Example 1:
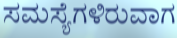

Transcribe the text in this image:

ಸಮಸ್ಯೆಗಳಿರುವಾಗ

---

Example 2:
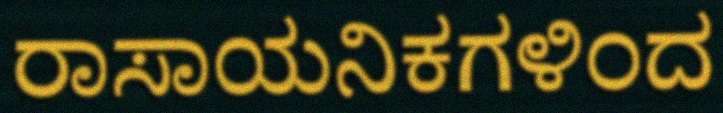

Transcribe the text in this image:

ರಾಸಾಯನಿಕಗಳಿಂದ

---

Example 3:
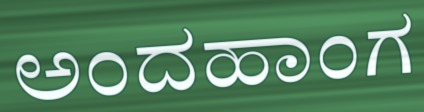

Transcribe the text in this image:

ಅಂದಹಾಂಗ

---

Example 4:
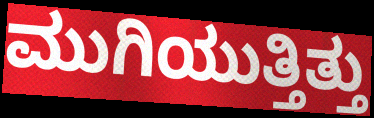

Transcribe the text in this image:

ಮುಗಿಯುತ್ತಿತ್ತು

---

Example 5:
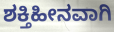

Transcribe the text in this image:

ಶಕ್ತಿಹೀನವಾಗಿ